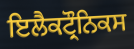
ਇਲੈਕਟ੍ਰੌਨਿਕਸ